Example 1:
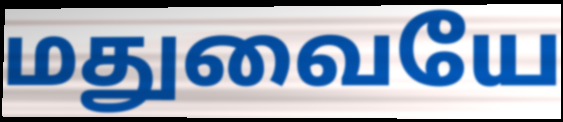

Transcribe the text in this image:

மதுவையே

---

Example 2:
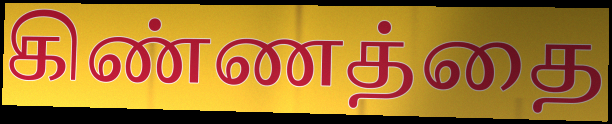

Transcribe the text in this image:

கிண்ணத்தை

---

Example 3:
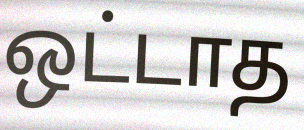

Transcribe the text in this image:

ஒட்டாத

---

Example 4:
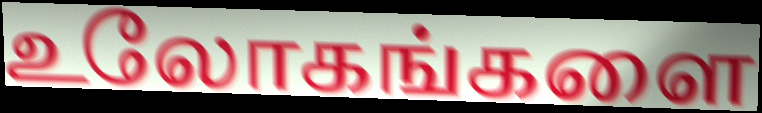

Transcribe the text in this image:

உலோகங்களை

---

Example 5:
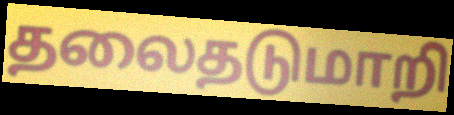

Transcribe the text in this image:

தலைதடுமாறி